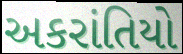
અકરાંતિયો